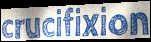
crucifixion